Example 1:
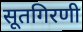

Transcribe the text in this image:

सूतगिरणी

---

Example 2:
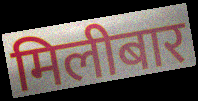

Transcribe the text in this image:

मिलीबार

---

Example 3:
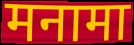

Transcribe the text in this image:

मनामा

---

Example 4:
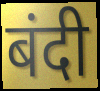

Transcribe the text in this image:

बंदी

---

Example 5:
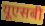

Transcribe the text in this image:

यूएसबी